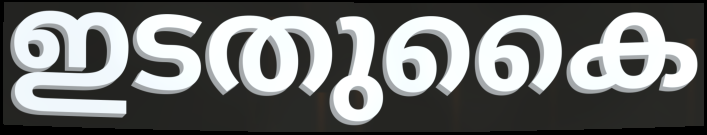
ഇടതുകൈ